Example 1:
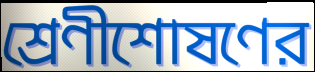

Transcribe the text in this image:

শ্রেণীশোষণের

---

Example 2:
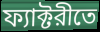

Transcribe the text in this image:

ফ্যাক্টরীতে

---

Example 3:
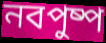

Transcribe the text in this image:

নবপুষ্প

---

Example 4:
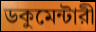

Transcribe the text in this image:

ডকুমেন্টারী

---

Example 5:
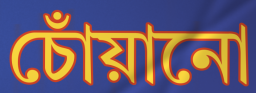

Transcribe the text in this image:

চোঁয়ানো